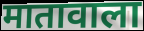
मातावाला